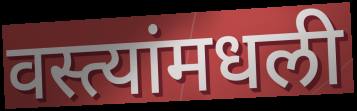
वस्त्यांमधली